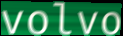
volvo